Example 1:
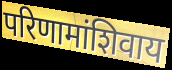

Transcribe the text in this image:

परिणामांशिवाय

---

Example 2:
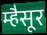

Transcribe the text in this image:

म्हैसूर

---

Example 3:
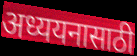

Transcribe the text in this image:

अध्ययनासाठी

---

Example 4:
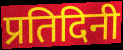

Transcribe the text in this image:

प्रतिदिनी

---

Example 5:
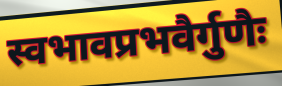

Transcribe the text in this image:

स्वभावप्रभवैर्गुणैः